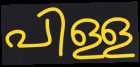
പിള്ള